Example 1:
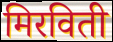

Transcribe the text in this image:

मिरविती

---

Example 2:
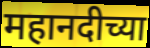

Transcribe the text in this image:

महानदीच्या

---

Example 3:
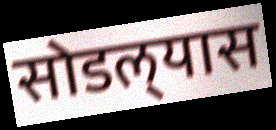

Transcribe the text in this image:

सोडल्यास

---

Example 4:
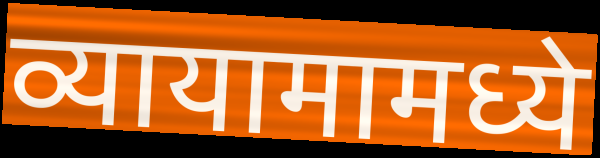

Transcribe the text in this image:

व्यायामामध्ये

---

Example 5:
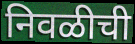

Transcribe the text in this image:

निवळीची